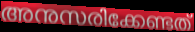
അനുസരിക്കേണ്ടത്